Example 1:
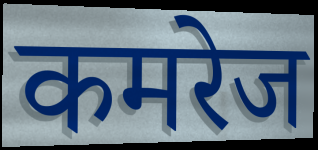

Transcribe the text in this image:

कमरेज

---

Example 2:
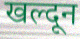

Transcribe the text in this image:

खल्दून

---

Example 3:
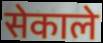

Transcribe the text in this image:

सेकाले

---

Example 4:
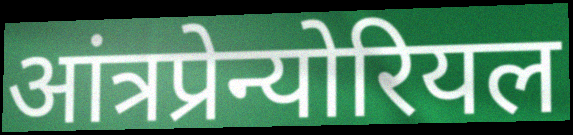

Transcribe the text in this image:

आंत्रप्रेन्योरियल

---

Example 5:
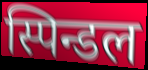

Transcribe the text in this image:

स्पिन्डल